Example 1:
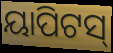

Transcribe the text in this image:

ୟାପିଟସ୍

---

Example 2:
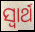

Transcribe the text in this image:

ସ୍ୱାର୍ଥ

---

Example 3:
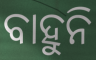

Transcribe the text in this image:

ବାହୁନି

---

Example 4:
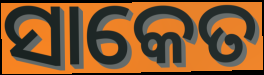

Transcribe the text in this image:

ସାକେତ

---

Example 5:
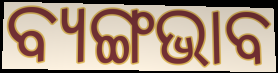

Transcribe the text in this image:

ବ୍ୟଙ୍ଗଭାବ